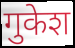
गुकेश